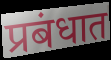
प्रबंधात